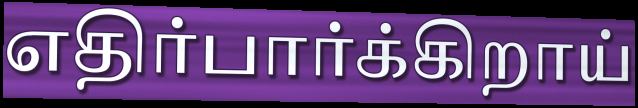
எதிர்பார்க்கிறாய்